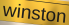
winston